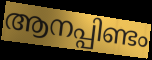
ആനപ്പിണ്ടം